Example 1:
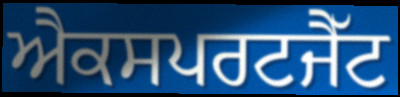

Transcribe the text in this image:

ਐਕਸਪਰਟਜੈੱਟ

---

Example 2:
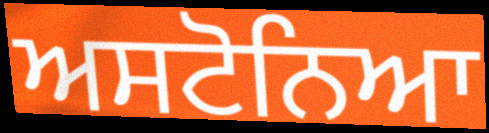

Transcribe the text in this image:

ਅਸਟੋਨਿਆ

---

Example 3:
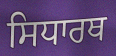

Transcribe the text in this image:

ਸਿਧਾਰਥ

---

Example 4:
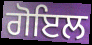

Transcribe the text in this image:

ਗੋਇਲ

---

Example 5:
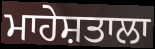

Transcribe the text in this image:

ਮਾਹੇਸ਼ਤਾਲਾ